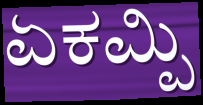
ಏಕಮ್ಪಿ